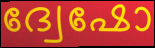
ദ്വേഷോ